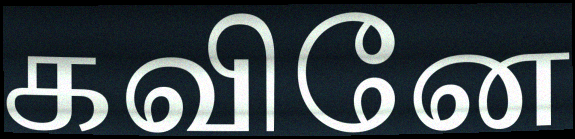
கவினே